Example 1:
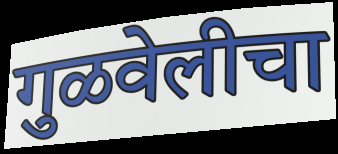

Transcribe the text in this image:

गुळवेलीचा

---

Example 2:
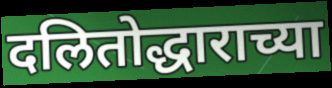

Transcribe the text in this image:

दलितोद्धाराच्या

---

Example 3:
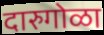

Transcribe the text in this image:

दारुगोळा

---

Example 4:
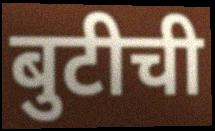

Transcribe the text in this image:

बुटीची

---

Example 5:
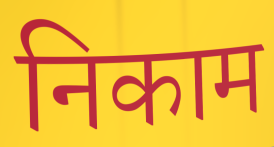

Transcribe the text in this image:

निकाम